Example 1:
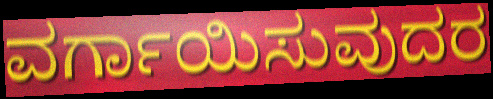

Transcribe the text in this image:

ವರ್ಗಾಯಿಸುವುದರ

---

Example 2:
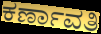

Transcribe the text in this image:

ಕರ್ಣಾವತಿ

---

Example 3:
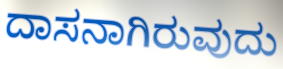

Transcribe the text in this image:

ದಾಸನಾಗಿರುವುದು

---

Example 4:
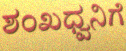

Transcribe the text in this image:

ಶಂಖಧ್ವನಿಗೆ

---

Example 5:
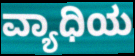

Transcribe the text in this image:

ವ್ಯಾಧಿಯ